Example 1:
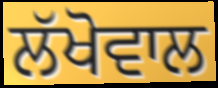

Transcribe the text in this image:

ਲੱਖੋਵਾਲ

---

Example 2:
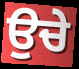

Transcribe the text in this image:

ਉਚੇ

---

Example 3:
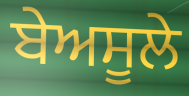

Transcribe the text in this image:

ਬੇਅਸੂਲੇ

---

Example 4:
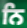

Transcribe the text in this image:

ਨਿ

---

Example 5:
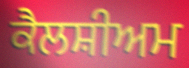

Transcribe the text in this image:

ਕੈਲਸ਼ੀਅਮ